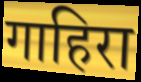
गाहिरा